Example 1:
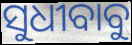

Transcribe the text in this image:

ସୁଧୀବାବୁ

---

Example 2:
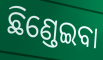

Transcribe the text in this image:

ଛିଣ୍ଡେଇବା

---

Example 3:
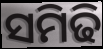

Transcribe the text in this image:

ସମିଢି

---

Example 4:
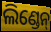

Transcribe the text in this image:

ଲିଣ୍ଡେନ୍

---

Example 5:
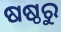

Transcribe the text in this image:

ଷଷ୍ଠରୁ